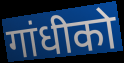
गांधीको